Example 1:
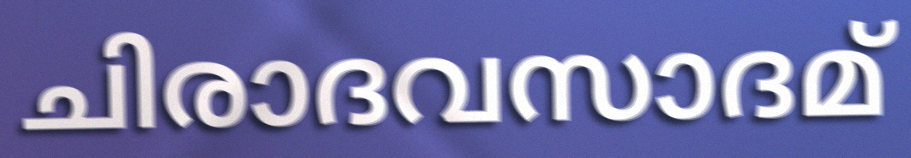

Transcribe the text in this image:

ചിരാദവസാദമ്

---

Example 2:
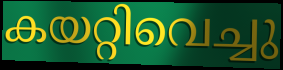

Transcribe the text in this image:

കയറ്റിവെച്ചു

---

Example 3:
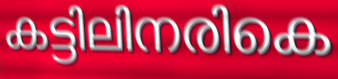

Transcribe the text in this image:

കട്ടിലിനരികെ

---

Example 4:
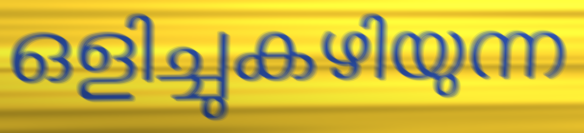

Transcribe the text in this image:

ഒളിച്ചുകഴിയുന്ന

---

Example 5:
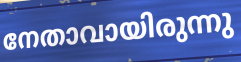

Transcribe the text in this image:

നേതാവായിരുന്നു